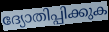
ദ്യോതിപ്പിക്കുക